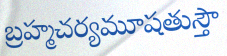
బ్రహ్మచర్యమూషతుస్తౌ